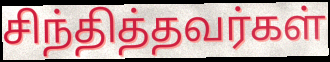
சிந்தித்தவர்கள்